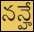
నన్హే